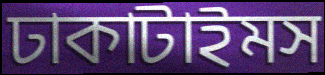
ঢাকাটাইমস